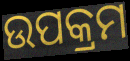
ଉପକ୍ରମ